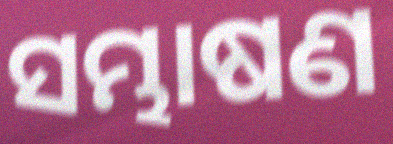
ସମ୍ଭାଷଣ